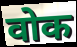
वोक